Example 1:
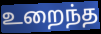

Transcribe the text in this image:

உறைந்த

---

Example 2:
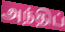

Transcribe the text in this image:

அந்திப்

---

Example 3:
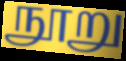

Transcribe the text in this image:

நூறு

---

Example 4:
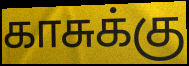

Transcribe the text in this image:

காசுக்கு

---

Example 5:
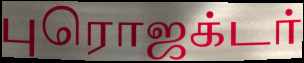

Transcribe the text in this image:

புரொஜக்டர்